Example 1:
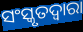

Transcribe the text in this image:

ସଂସ୍କୃତଦ୍ୱାରା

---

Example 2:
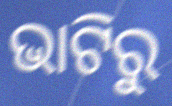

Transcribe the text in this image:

ଭାଟିରୁ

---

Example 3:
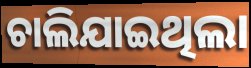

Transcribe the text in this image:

ଚାଲିଯାଇଥିଲା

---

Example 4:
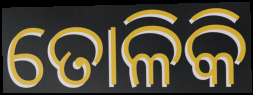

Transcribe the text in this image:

ତୋଳିକି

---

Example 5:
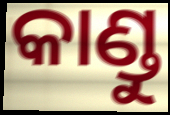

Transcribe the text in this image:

କାଣ୍ଡୁ